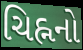
ચિહ્નનો